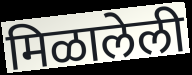
मिळालेली